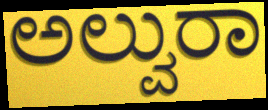
ಅಲ್ವುರಾ